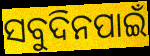
ସବୁଦିନପାଇଁ